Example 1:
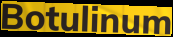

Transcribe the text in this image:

Botulinum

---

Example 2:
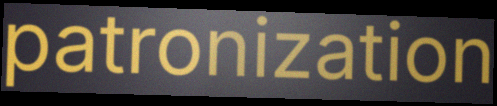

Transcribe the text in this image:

patronization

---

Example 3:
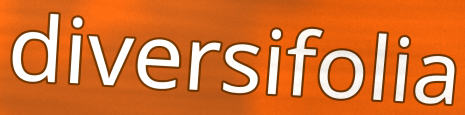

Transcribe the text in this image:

diversifolia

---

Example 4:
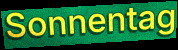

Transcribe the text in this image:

Sonnentag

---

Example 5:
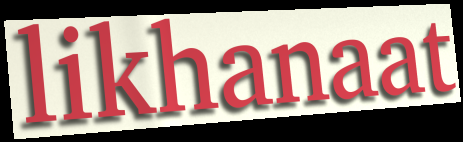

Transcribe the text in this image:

likhanaat